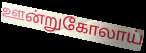
ஊன்றுகோலாய்